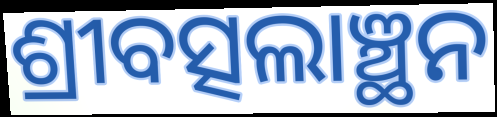
ଶ୍ରୀବତ୍ସଲାଞ୍ଛନ